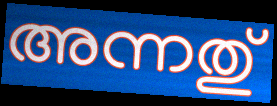
അന്നതു്